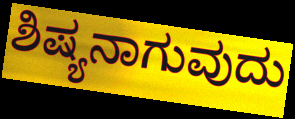
ಶಿಷ್ಯನಾಗುವುದು